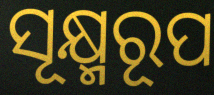
ସୂକ୍ଷ୍ମରୂପ